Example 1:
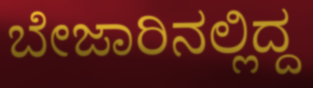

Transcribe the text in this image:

ಬೇಜಾರಿನಲ್ಲಿದ್ದ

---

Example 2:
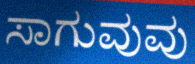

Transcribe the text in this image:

ಸಾಗುವುವು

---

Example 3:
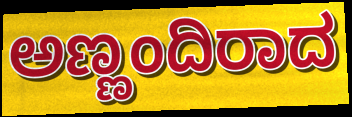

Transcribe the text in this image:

ಅಣ್ಣಂದಿರಾದ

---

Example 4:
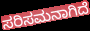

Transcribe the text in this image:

ಸರಿಸಮನಾಗಿದೆ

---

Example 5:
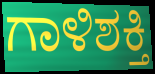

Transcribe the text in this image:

ಗಾಳಿಶಕ್ತಿ